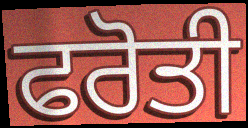
ਫਰੋਤੀ